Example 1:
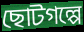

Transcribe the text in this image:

ছোটগল্পে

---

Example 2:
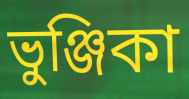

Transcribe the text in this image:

ভুঞ্জিকা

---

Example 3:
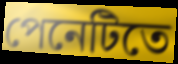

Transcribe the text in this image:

পেনেটিতে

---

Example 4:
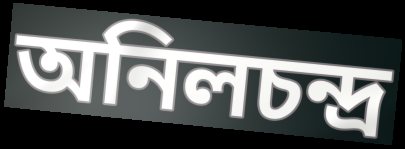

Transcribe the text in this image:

অনিলচন্দ্র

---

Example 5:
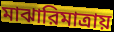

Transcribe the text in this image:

মাঝারিমাত্রায়